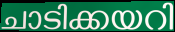
ചാടിക്കയറി